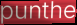
punthe